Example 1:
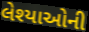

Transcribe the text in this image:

લેશ્યાઓની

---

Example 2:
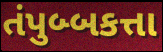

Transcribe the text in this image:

તંપુબ્બકત્તા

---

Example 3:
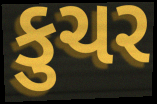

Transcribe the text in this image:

કુચર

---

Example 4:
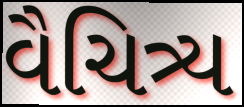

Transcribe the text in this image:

વૈચિત્ર્ય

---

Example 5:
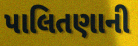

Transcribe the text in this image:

પાલિતણાની